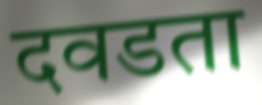
दवडता